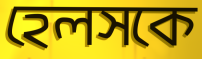
হেলসকে